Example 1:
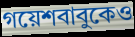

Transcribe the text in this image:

গয়েশবাবুকেও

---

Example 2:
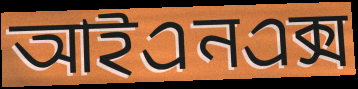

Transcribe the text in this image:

আইএনএক্স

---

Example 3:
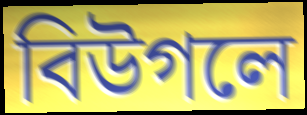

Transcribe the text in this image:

বিউগলে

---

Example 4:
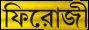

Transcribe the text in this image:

ফিরোজী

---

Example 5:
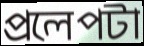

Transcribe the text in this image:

প্রলেপটা